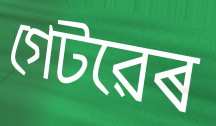
গেটৱেৰ